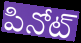
పినోట్